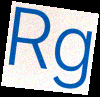
Rg